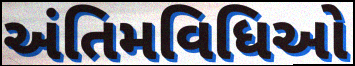
અંતિમવિધિઓ